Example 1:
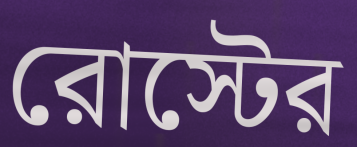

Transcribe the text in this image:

রোস্টের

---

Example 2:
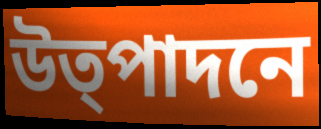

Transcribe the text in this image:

উত্পাদনে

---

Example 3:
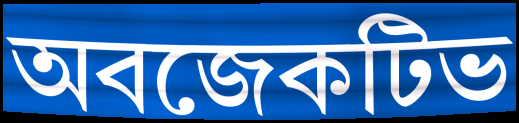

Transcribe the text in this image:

অবজেকটিভ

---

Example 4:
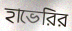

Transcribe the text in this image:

হাভেরির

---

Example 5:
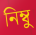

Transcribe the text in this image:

নিম্বু